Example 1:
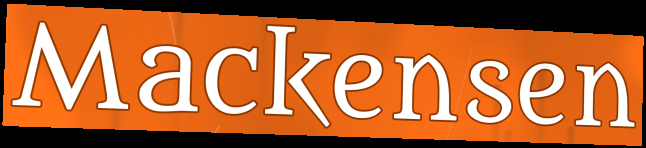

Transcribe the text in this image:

Mackensen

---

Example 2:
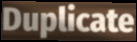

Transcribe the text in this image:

Duplicate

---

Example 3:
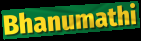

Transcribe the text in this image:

Bhanumathi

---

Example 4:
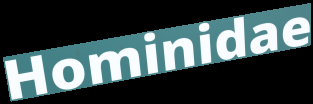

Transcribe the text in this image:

Hominidae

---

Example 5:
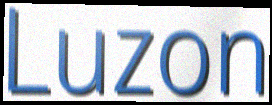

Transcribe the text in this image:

Luzon